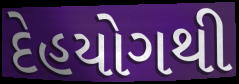
દેહયોગથી